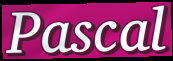
Pascal